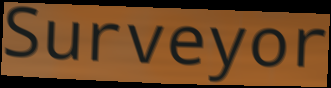
Surveyor